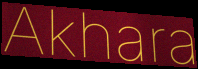
Akhara